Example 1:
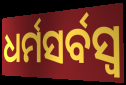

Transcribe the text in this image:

ଧର୍ମସର୍ବସ୍ୱ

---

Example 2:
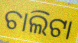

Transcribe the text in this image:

ଚାଲିଟା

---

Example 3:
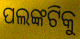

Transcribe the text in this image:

ପଲଙ୍କଟିକୁ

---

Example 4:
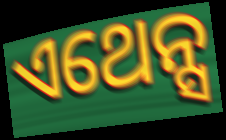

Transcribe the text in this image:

ଏଥେନ୍ସ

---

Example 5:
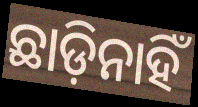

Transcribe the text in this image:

ଛାଡ଼ିନାହିଁ